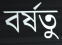
বর্ষতু